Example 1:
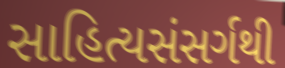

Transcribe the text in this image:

સાહિત્યસંસર્ગથી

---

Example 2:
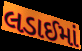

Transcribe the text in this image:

લડાઈમાં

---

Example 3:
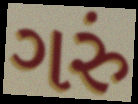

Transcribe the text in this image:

ગરું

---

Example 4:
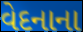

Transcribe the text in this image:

વેદનાના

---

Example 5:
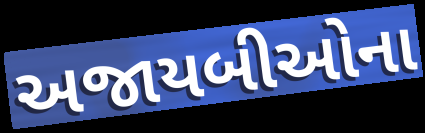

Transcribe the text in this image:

અજાયબીઓના